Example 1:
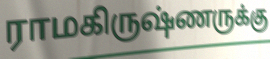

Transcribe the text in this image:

ராமகிருஷ்ணருக்கு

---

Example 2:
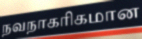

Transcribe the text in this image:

நவநாகரிகமான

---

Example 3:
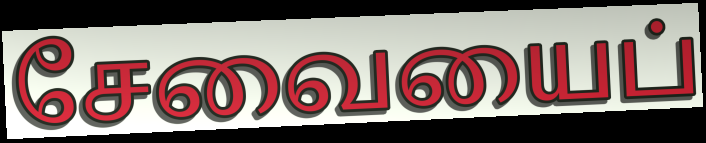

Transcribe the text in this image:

சேவையைப்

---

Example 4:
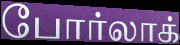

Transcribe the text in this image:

போர்லாக்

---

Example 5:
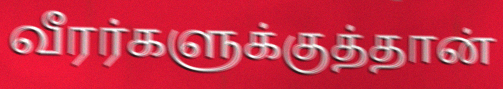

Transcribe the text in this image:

வீரர்களுக்குத்தான்